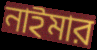
নাইমার